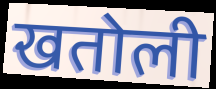
खतोली